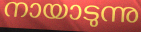
നായാടുന്നു